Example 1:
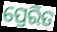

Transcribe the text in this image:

ପ୍ରେରିତ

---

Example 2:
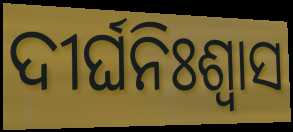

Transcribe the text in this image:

ଦୀର୍ଘନିଃଶ୍ବାସ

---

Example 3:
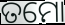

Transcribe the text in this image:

ତମୋ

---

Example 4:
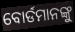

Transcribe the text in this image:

ବୋର୍ଡମାନଙ୍କୁ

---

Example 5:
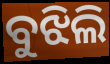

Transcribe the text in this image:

ବୁଝିଲି